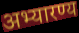
अभ्यारण्य